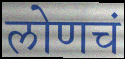
लोणचं